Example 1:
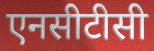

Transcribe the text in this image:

एनसीटीसी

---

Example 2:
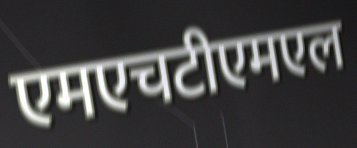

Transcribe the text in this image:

एमएचटीएमएल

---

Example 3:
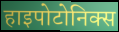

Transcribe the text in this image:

हाइपोटोनिक्स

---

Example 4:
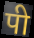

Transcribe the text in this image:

पी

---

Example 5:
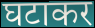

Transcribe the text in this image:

घटाकर